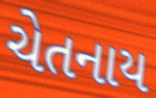
ચેતનાય